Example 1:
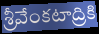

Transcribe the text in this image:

శ్రీవేంకటాద్రికి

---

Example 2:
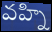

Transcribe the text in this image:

వహ్ని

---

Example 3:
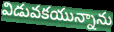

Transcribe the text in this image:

విడువకయున్నాను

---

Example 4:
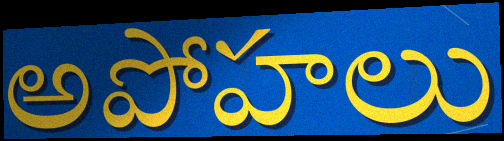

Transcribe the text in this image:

అపోహలు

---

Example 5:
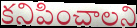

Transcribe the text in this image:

కనిపించాలని